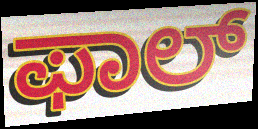
ಫಾಲ್